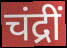
चंद्रीं